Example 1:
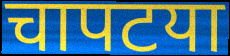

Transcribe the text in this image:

चापटया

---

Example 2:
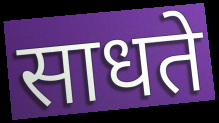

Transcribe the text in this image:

साधते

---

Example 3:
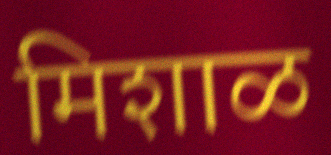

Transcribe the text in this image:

मिशाळ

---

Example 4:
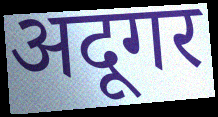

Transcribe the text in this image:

अदूगर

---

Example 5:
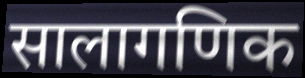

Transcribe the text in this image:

सालागणिक